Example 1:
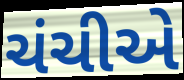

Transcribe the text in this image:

ચંચીએ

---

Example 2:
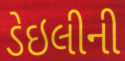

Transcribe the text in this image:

ડેઇલીની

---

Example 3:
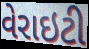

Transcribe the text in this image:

વેરાઇટી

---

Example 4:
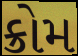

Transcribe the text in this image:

ક્રોમ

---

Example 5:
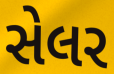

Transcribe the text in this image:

સેલર